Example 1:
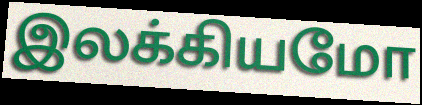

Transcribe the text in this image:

இலக்கியமோ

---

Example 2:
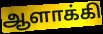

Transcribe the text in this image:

ஆளாக்கி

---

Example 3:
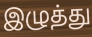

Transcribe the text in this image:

இழுத்து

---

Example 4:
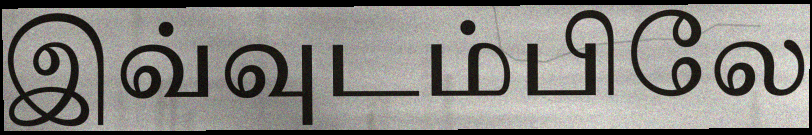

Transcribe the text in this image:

இவ்வுடம்பிலே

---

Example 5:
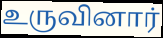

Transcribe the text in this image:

உருவினார்